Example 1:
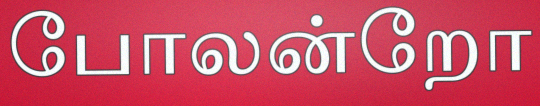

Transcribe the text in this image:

போலன்றோ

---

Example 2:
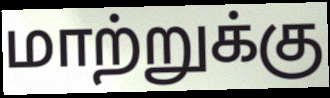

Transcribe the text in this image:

மாற்றுக்கு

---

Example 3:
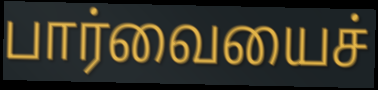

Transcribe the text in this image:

பார்வையைச்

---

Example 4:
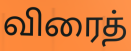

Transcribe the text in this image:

விரைத்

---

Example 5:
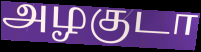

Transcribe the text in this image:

அழகுடா